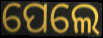
ପେଲେ